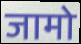
जामो